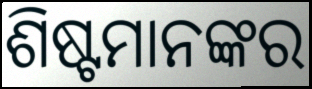
ଶିଷ୍ଟମାନଙ୍କର